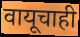
वायूचाही